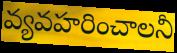
వ్యవహరించాలనీ